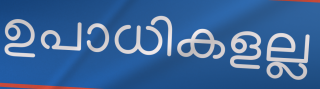
ഉപാധികളല്ല